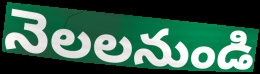
నెలలనుండి